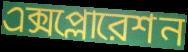
এক্সপ্লোরেশন